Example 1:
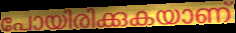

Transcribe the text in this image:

പോയിരിക്കുകയാണ്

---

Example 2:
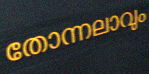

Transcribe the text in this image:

തോന്നലാവും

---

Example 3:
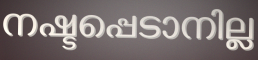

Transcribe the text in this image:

നഷ്ടപ്പെടാനില്ല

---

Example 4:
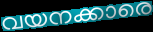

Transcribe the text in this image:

വയനക്കാരെ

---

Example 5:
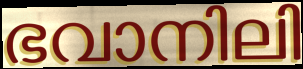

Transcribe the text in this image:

ഭവാനിലി